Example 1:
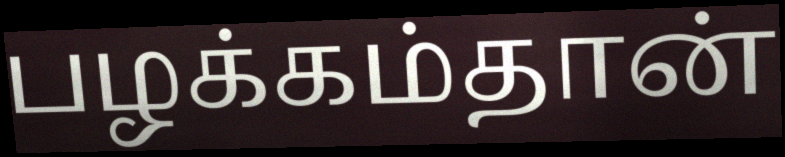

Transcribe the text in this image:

பழக்கம்தான்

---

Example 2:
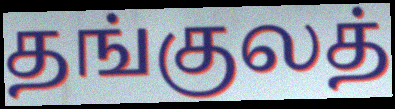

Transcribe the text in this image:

தங்குலத்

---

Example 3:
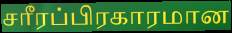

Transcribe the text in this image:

சரீரப்பிரகாரமான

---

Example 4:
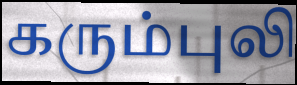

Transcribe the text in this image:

கரும்புலி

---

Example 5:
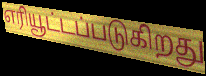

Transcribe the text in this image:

எரியூட்டப்படுகிறது